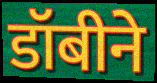
डॉबीने